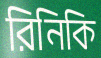
রিনিকি